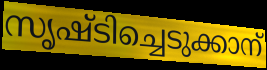
സൃഷ്ടിച്ചെടുക്കാന്